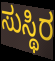
ಸುಸ್ಥಿರ